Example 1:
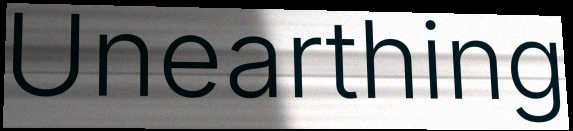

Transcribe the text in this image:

Unearthing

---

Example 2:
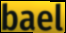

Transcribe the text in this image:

bael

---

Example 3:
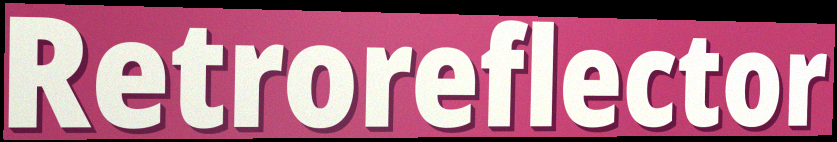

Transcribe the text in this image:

Retroreflector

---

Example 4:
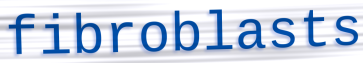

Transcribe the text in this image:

fibroblasts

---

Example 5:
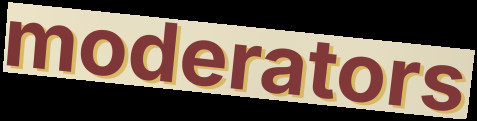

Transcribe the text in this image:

moderators